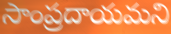
సాంప్రదాయమని